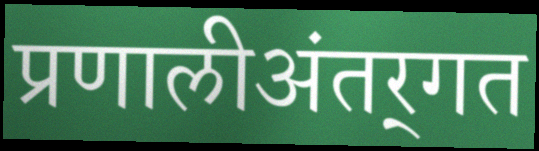
प्रणालीअंतर्गत